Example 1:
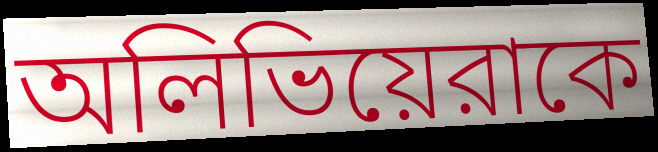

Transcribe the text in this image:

অলিভিয়েরাকে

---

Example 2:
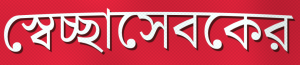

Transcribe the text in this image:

স্বেচ্ছাসেবকের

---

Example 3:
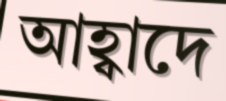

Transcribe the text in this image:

আহ্বাদে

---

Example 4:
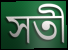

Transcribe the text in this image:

সতী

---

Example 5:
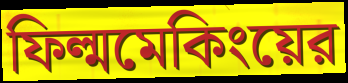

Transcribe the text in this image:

ফিল্মমেকিংয়ের